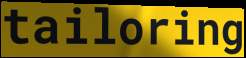
tailoring